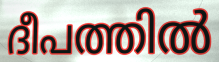
ദീപത്തിൽ